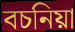
বচনিয়া